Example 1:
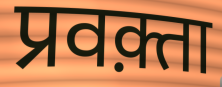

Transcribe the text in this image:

प्रवक़्ता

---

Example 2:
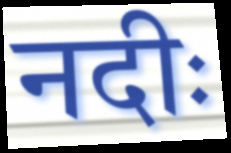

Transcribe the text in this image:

नदीः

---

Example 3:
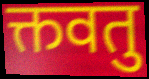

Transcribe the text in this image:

क्तवतु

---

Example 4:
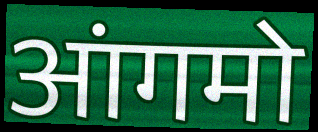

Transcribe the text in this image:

आंगमो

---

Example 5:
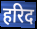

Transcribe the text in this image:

हरिद